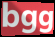
bgg